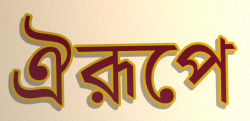
ঐরূপে